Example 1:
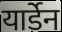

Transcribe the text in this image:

यार्डेन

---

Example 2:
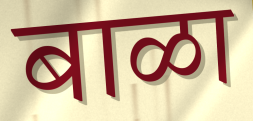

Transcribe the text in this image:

बाळा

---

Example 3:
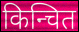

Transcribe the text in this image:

किन्चित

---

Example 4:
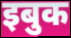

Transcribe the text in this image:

इबुक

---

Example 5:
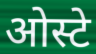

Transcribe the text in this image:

ओस्टे